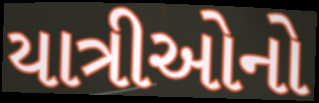
યાત્રીઓનો